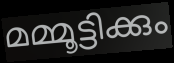
മമ്മൂട്ടിക്കും